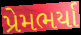
પ્રેમભર્યા